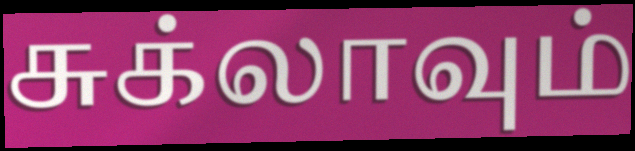
சுக்லாவும்